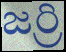
జర్రి